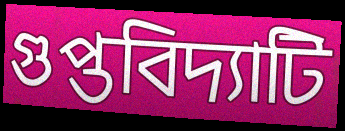
গুপ্তবিদ্যাটি